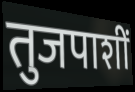
तुजपाशीं